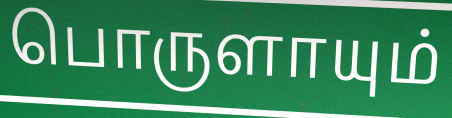
பொருளாயும்